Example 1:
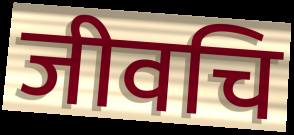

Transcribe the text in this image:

जीवचि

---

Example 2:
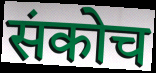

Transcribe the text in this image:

संकोच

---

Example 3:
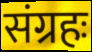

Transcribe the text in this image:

संग्रहः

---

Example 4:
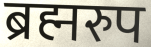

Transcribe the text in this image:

ब्रह्मरुप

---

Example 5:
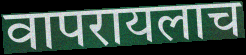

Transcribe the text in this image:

वापरायलाच